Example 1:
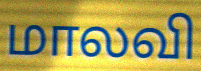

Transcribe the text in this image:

மாலவி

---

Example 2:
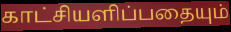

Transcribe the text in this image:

காட்சியளிப்பதையும்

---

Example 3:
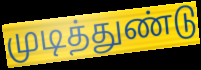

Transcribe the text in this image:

முடித்துண்டு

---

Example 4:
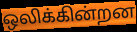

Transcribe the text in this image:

ஒலிக்கின்றன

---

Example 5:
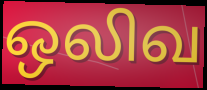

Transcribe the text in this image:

ஒலிவ